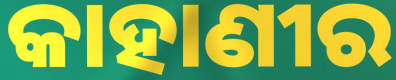
କାହାଣୀର